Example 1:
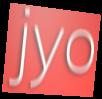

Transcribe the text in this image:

jyo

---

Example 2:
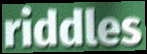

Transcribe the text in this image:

riddles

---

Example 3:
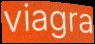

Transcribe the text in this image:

viagra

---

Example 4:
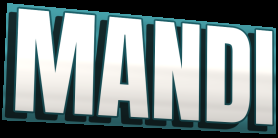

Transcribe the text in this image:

MANDI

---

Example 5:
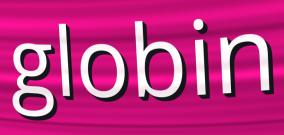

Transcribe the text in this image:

globin